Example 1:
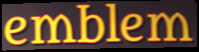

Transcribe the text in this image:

emblem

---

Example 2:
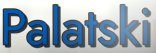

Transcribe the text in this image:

Palatski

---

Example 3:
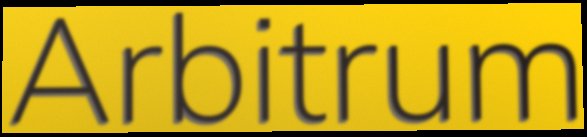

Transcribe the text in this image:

Arbitrum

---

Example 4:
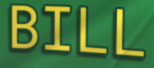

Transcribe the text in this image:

BILL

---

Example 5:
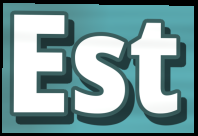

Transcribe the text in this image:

Est